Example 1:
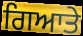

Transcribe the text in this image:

ਗਿਆਤੇ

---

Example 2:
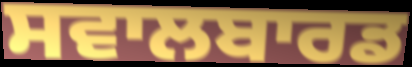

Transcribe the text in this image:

ਸਵਾਲਬਾਰਡ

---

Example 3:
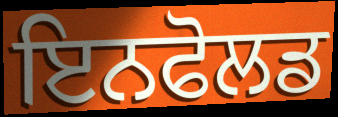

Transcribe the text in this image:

ਇਨਫੋਲਡ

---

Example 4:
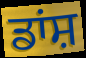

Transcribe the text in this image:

ਡਾਂਸ਼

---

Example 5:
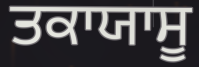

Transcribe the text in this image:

ਤਕਾਯਾਸੂ